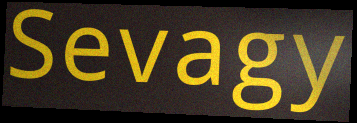
Sevagy